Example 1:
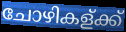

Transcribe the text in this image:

ചോഴികള്ക്ക്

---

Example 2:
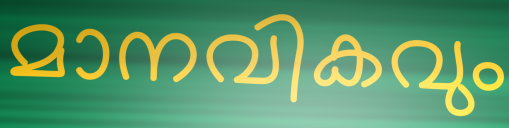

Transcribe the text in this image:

മാനവികവും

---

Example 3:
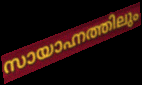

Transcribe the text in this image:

സായാഹ്നത്തിലും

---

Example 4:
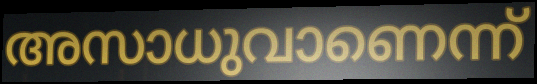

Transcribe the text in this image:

അസാധുവാണെന്ന്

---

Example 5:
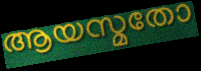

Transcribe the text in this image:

ആയസ്മതോ